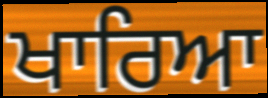
ਖਾਰਿਆ